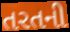
તરતની